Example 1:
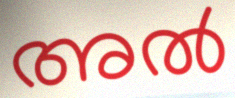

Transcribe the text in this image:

അൽ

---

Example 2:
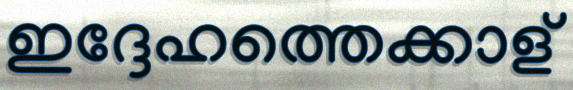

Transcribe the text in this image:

ഇദ്ദേഹത്തെക്കാള്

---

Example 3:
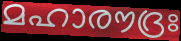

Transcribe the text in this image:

മഹാരൗദ്രഃ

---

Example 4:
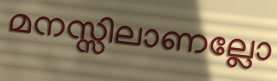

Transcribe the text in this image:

മനസ്സിലാണല്ലോ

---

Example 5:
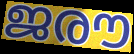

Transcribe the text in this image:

ജരൗ